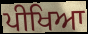
ਪੀਖਿਆ